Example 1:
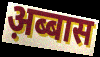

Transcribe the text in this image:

अ़ब्बास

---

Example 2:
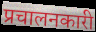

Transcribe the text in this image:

प्रचालनकारी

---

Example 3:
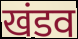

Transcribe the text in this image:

खंडव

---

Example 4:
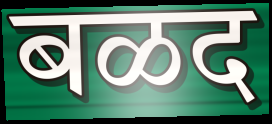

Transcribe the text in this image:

बळद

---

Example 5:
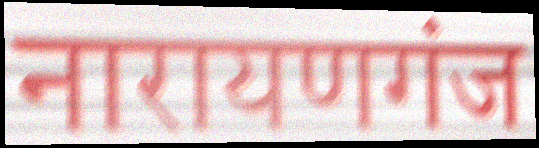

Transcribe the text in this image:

नारायणगंज